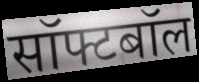
सॉफ्टबॉल